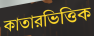
কাতারভিত্তিক